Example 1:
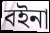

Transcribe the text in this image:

বইনা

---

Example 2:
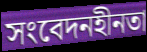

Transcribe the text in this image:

সংবেদনহীনতা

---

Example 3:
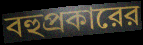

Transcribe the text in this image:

বহুপ্রকারের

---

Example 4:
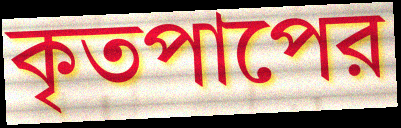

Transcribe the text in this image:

কৃতপাপের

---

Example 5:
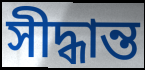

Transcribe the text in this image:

সীদ্ধান্ত